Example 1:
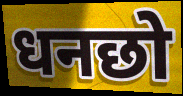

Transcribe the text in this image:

धनछो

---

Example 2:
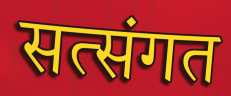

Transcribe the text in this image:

सत्संगत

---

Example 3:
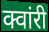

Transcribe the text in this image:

क्वांरी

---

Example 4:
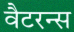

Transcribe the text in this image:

वैटरन्स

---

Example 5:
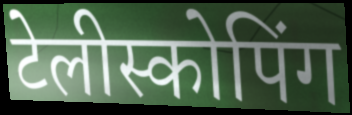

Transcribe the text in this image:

टेलीस्कोपिंग